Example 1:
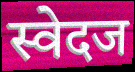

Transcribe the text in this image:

स्वेदज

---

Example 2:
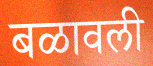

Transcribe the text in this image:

बळावली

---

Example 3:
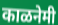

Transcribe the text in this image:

काळनेमी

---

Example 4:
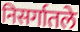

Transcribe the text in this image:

निसर्गातले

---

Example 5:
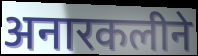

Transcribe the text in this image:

अनारकलीने